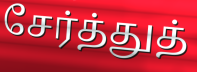
சேர்த்துத்